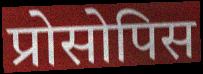
प्रोसोपिस